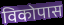
विकोपास